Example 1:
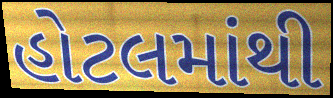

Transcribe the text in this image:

હોટલમાંથી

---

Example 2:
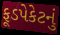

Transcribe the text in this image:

ફૂડપેકેટનું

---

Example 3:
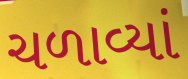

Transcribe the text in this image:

ચળાવ્યાં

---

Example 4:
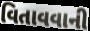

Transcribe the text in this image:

વિતાવવાની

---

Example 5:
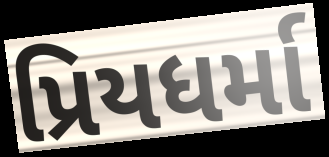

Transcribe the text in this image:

પ્રિયધર્મા